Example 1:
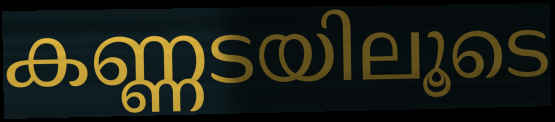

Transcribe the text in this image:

കണ്ണടയിലൂടെ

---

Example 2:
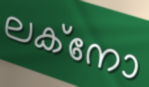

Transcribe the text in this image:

ലക്നോ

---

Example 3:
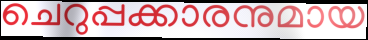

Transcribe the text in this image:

ചെറുപ്പക്കാരനുമായ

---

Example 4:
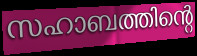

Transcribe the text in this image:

സഹാബത്തിന്റെ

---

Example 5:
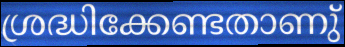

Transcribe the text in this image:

ശ്രദ്ധിക്കേണ്ടതാണു്